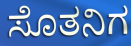
ಸೊತನಿಗ